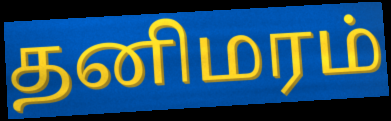
தனிமரம்